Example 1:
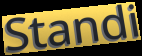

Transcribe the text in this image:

Standi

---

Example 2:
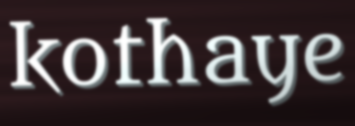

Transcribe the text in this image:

kothaye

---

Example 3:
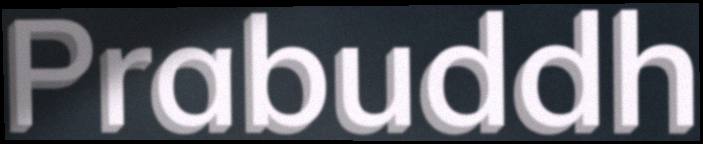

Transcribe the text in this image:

Prabuddh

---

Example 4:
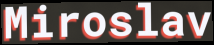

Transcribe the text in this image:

Miroslav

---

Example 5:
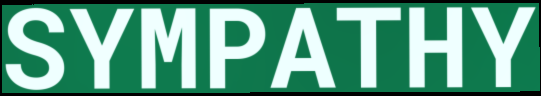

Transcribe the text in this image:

SYMPATHY